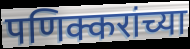
पणिक्करांच्या